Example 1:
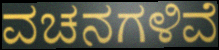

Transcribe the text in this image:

ವಚನಗಳಿವೆ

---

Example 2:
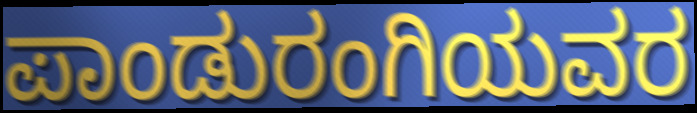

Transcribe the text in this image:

ಪಾಂಡುರಂಗಿಯವರ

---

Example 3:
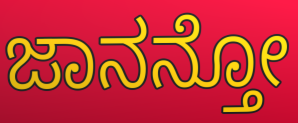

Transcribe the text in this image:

ಜಾನನ್ತೋ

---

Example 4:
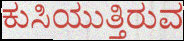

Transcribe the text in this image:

ಕುಸಿಯುತ್ತಿರುವ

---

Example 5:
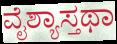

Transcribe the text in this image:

ವೈಶ್ಯಾಸ್ತಥಾ